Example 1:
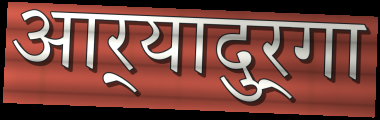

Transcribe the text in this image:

आर्यादुर्गा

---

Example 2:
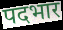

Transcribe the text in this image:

पदभार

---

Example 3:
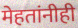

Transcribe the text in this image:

मेहतांनीही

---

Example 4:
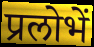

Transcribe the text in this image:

प्रलोभें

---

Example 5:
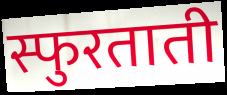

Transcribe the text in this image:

स्फुरताती